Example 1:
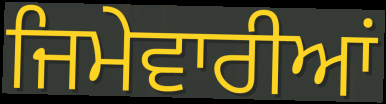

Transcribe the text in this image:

ਜਿਮੇਵਾਰੀਆਂ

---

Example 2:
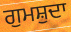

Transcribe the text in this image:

ਗੁਮਸ਼ੁਦਾ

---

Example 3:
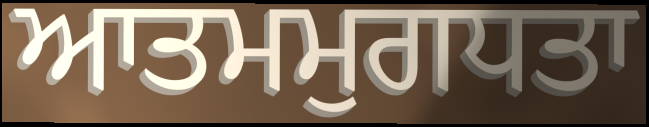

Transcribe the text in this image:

ਆਤਮਮੁਗਧਤਾ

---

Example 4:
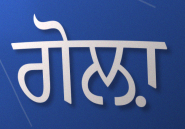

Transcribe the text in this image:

ਗੋਲ਼ਾ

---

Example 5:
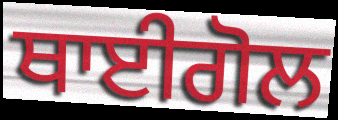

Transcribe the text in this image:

ਥਾਈਗੋਲ